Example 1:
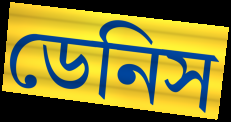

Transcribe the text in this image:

ডেনিস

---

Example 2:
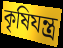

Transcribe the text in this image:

কৃষিযন্ত্র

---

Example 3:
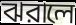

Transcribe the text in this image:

ঝরালে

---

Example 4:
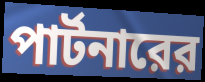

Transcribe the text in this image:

পার্টনারের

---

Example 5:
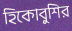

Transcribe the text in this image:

হিকোবুশির